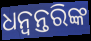
ଧନ୍ୱନ୍ତରିଙ୍କ